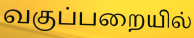
வகுப்பறையில்